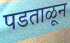
पडताळून